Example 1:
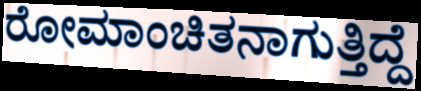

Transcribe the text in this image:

ರೋಮಾಂಚಿತನಾಗುತ್ತಿದ್ದೆ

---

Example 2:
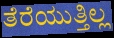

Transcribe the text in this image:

ತೆರೆಯುತ್ತಿಲ್ಲ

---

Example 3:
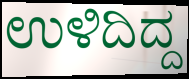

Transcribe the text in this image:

ಉಳಿದಿದ್ದ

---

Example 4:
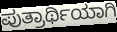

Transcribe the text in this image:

ಪುತ್ರಾರ್ಥಿಯಾಗಿ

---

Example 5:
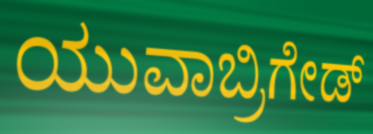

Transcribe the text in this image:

ಯುವಾಬ್ರಿಗೇಡ್